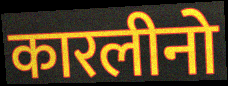
कारलीनो